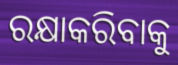
ରକ୍ଷାକରିବାକୁ